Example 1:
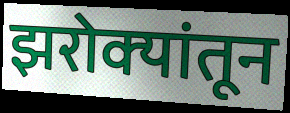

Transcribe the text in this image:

झरोक्यांतून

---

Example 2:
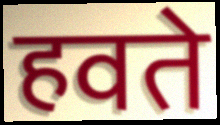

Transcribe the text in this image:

हवते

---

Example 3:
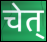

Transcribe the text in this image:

चेत्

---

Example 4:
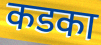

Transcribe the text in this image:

कडका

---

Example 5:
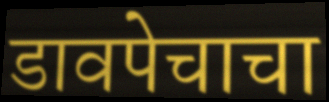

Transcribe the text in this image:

डावपेचाचा